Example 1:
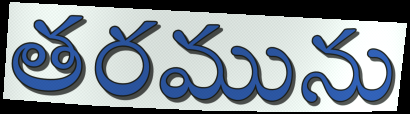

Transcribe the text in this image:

తరమును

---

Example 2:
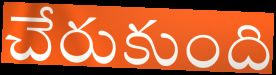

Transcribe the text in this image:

చేరుకుంది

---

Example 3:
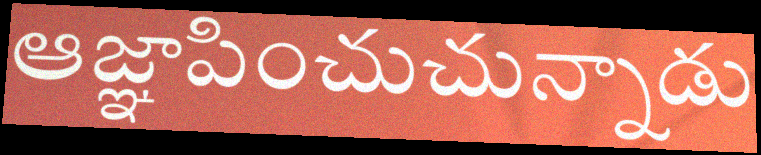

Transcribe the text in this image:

ఆజ్ఞాపించుచున్నాడు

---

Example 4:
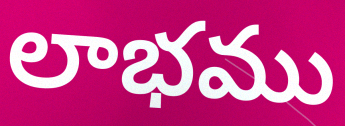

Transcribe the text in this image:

లాభము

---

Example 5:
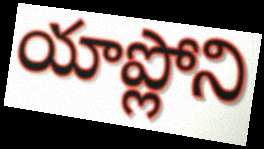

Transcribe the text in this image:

యాప్లోని